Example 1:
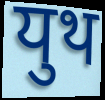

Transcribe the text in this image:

युथ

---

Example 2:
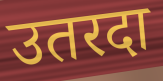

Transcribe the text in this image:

उतरदा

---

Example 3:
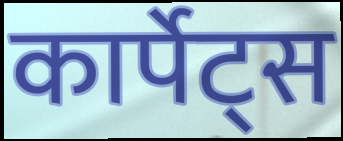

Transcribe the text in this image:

कार्पेट्स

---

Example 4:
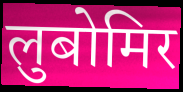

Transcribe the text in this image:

लुबोमिर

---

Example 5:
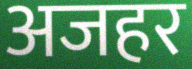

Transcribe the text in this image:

अजहर